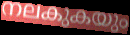
നലകുകയും